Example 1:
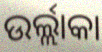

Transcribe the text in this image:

ଉର୍ଲ୍ଲାକା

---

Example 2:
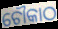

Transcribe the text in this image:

ଚୌକାଠ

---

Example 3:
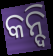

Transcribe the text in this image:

କନ୍ଦି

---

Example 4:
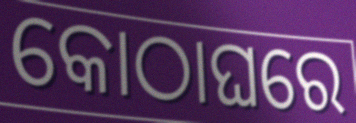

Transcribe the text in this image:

କୋଠାଘରେ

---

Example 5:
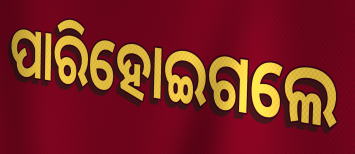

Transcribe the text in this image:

ପାରିହୋଇଗଲେ